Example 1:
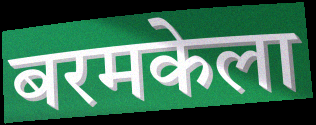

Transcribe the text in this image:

बरमकेला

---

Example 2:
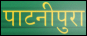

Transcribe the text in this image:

पाटनीपुरा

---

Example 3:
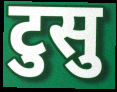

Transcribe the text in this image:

टुसु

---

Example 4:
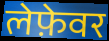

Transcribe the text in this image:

लेफ़ेवर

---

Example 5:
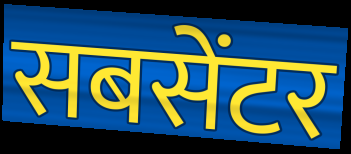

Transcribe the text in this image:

सबसेंटर